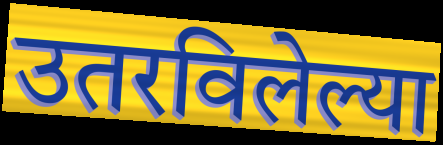
उतरविलेल्या